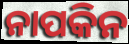
ନାପକିନ